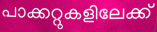
പാക്കറ്റുകളിലേക്ക്